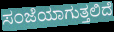
ಸಂಜೆಯಾಗುತ್ತಲಿದೆ